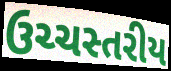
ઉચ્ચસ્તરીય